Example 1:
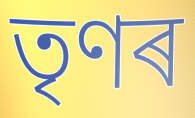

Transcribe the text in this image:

তৃণৰ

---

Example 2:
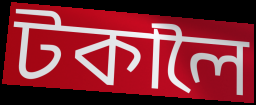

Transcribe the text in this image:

টকালৈ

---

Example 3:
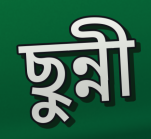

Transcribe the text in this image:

ছুন্নী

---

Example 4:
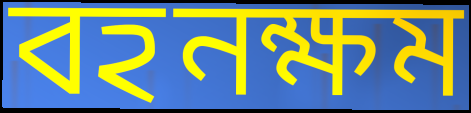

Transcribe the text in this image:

বহনক্ষম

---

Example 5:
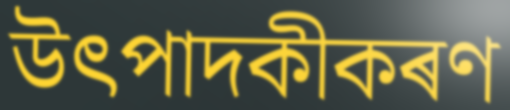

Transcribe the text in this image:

উৎপাদকীকৰণ